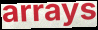
arrays